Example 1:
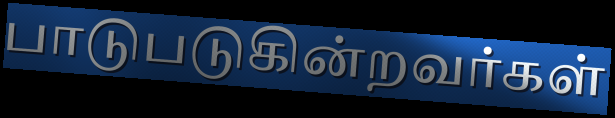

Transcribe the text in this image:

பாடுபடுகின்றவர்கள்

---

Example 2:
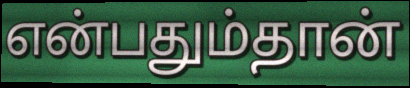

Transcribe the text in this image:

என்பதும்தான்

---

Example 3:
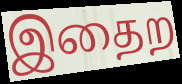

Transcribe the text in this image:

இதைற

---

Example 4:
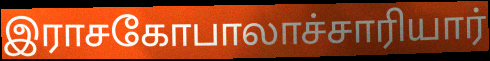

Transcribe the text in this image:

இராசகோபாலாச்சாரியார்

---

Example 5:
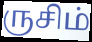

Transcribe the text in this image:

ருசிம்